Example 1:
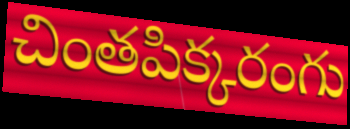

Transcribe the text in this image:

చింతపిక్కరంగు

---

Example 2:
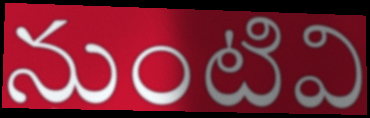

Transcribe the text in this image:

నుంటివి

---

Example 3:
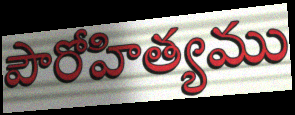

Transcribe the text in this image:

పౌరోహిత్యము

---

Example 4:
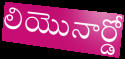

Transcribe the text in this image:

లియొనార్డో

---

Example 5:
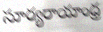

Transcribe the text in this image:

సూర్యరాయాంధ్ర